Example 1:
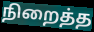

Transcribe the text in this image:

நிறைத்த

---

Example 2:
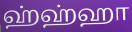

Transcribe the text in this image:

ஹ்ஹ்ஹா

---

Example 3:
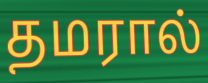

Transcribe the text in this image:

தமரால்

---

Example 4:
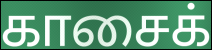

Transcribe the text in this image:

காசைக்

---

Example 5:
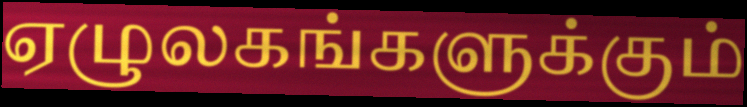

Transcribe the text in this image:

ஏழுலகங்களுக்கும்